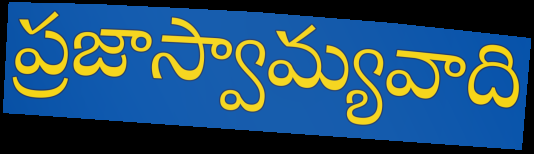
ప్రజాస్వామ్యవాది